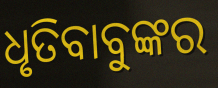
ଧୃତିବାବୁଙ୍କର